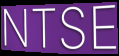
NTSE